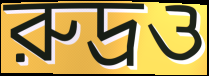
রুদ্রও